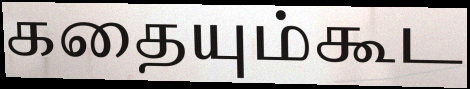
கதையும்கூட